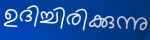
ഉദിച്ചിരിക്കുന്നു